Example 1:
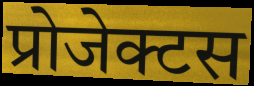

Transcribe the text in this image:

प्रोजेक्‍टस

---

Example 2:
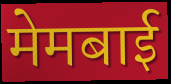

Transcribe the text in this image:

मेमबाई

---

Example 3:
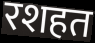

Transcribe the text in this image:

रशहत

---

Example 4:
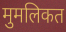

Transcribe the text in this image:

मुमलिकत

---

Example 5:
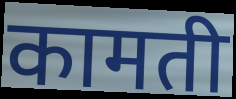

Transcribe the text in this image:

कामती